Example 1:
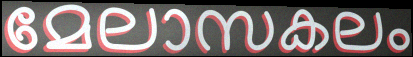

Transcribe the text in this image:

മേലാസകലം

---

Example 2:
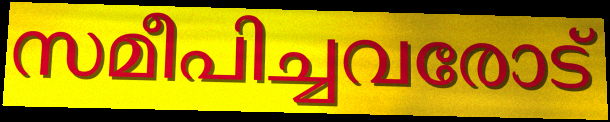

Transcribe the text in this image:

സമീപിച്ചവരോട്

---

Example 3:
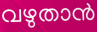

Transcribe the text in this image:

വഴുതാൻ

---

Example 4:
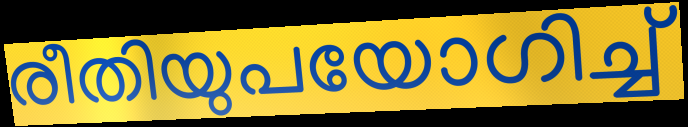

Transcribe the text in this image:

രീതിയുപയോഗിച്ച്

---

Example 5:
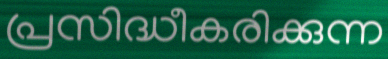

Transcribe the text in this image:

പ്രസിദ്ധീകരിക്കുന്ന